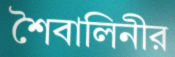
শৈবালিনীর